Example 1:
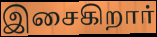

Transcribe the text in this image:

இசைகிறார்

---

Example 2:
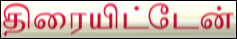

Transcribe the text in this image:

திரையிட்டேன்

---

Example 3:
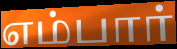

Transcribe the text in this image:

எம்பார்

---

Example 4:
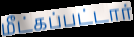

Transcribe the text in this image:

மீட்கப்பட்டார்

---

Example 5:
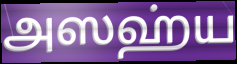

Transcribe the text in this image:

அஸஹ்ய